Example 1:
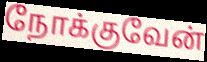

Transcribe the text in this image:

நோக்குவேன்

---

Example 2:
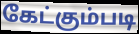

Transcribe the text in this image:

கேட்கும்படி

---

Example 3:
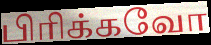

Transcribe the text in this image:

பிரிக்கவோ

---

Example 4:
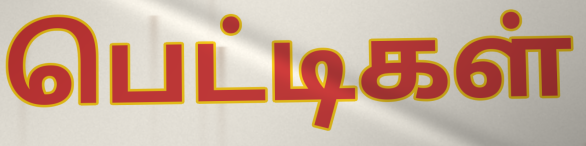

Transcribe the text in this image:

பெட்டிகள்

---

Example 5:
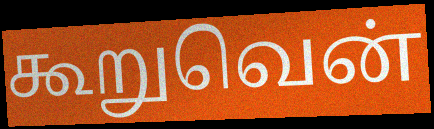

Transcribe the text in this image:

கூறுவென்